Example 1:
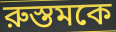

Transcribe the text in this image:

রুস্তমকে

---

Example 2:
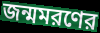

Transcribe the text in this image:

জন্মমরণের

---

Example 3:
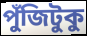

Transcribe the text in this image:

পুঁজিটুকু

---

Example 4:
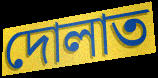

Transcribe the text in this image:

দোলাত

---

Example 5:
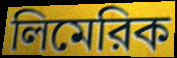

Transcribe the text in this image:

লিমেরিক